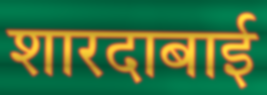
शारदाबाई